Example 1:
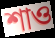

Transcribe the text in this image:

শাও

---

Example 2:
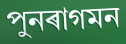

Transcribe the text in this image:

পুনৰাগমন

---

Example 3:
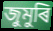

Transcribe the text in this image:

জুমুৰি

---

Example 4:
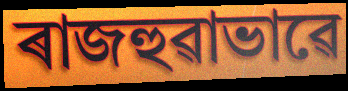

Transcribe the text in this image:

ৰাজহুৱাভাৱে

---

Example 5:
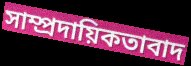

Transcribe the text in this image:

সাম্প্ৰদায়িকতাবাদ